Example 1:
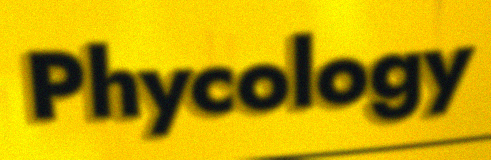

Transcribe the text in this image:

Phycology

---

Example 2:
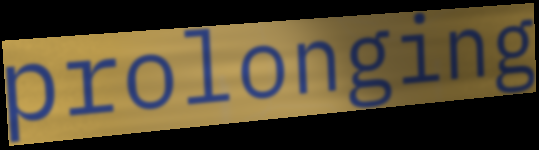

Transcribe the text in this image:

prolonging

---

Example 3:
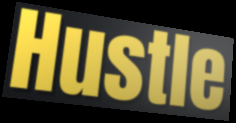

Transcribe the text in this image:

Hustle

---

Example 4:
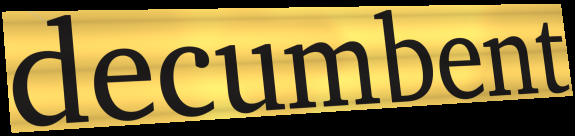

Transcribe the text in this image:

decumbent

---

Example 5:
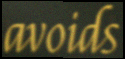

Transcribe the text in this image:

avoids